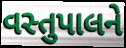
વસ્તુપાલને